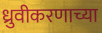
ध्रुवीकरणाच्या